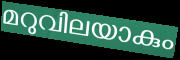
മറുവിലയാകും